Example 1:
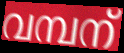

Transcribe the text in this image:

വമ്പന്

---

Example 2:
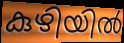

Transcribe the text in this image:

കുഴിയിൽ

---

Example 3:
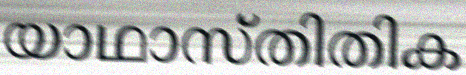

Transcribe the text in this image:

യാഥാസ്തിതിക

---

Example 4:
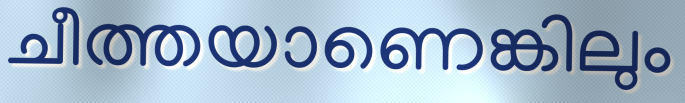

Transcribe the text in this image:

ചീത്തയാണെങ്കിലും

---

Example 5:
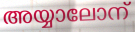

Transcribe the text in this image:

അയ്യാലോന്